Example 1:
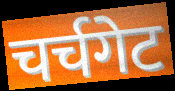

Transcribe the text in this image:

चर्चगेट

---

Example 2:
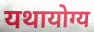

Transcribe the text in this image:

यथायोग्य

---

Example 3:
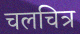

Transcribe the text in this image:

चलचित्र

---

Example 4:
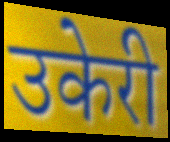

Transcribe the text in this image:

उकेरी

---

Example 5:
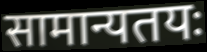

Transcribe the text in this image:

सामान्यतयः